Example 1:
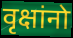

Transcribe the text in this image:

वृक्षांनो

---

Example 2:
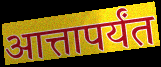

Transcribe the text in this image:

आत्तापर्यंत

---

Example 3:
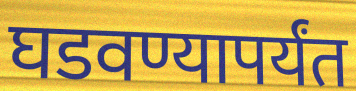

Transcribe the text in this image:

घडवण्यापर्यंत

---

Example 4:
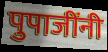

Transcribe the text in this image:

पुपाजींनी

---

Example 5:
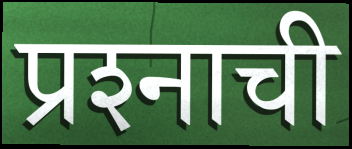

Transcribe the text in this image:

प्रश्‍नाची